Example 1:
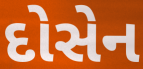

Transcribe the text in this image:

દોસેન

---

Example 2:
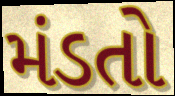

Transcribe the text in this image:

મંડતો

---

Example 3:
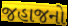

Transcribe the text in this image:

જહાજનો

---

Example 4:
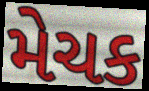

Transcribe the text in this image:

મેચક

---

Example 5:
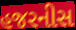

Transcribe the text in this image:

હજરનીસ